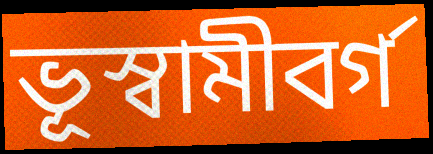
ভূস্বামীবর্গ